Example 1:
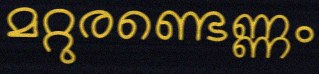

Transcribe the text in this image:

മറ്റുരണ്ടെണ്ണം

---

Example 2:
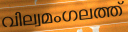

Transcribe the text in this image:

വില്വമംഗലത്ത്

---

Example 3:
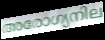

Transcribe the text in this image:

അരോഗ്യനില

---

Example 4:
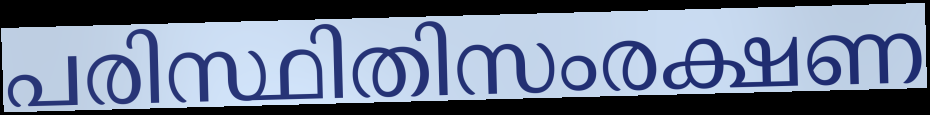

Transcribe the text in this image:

പരിസ്ഥിതിസംരക്ഷണ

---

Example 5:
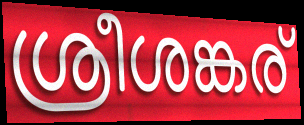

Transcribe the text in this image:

ശ്രീശങ്കര്